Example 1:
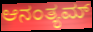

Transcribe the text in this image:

ಆನಂತ್ಯಮ್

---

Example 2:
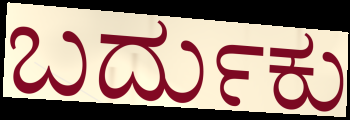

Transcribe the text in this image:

ಬರ್ದುಕು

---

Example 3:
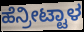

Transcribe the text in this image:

ಹೆನ್ರೀಟ್ಟಾಳ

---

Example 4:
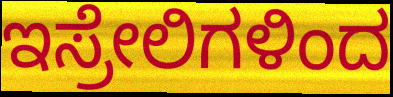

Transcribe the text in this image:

ಇಸ್ರೇಲಿಗಳಿಂದ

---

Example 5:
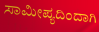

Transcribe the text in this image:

ಸಾಮೀಪ್ಯದಿಂದಾಗಿ